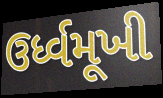
ઉર્ધ્વમૂખી